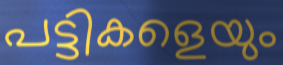
പട്ടികളെയും